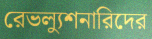
রেভল্যুশনারিদের